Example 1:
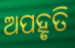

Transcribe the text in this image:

ଅପହୃତି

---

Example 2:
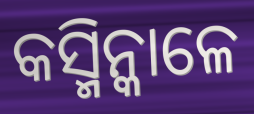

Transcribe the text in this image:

କସ୍ମିନ୍କାଳେ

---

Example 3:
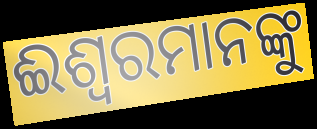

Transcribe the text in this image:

ଈଶ୍ୱରମାନଙ୍କୁ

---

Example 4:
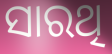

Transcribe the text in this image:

ସାରଥି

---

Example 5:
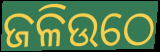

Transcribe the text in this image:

ଜଳିଉଠେ